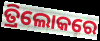
ତ୍ରିଲୋକରେ